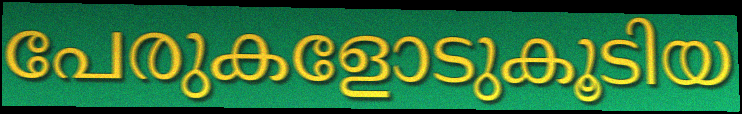
പേരുകളോടുകൂടിയ